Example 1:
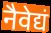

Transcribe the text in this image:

नैवेद्यं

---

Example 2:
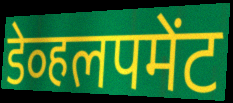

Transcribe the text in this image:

डेव्‍हलपमेंट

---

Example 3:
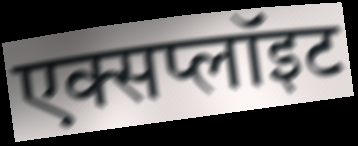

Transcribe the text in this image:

एक्सप्लॉइट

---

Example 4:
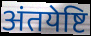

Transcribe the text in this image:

अंतयेष्टि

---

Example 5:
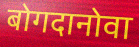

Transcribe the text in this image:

बोगदानोवा